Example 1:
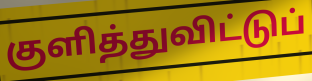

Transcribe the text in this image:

குளித்துவிட்டுப்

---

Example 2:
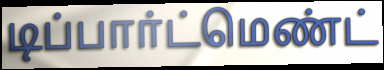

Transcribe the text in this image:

டிப்பார்ட்மெண்ட்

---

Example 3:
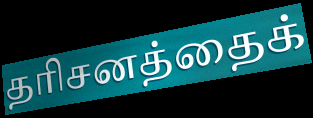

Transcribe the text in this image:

தரிசனத்தைக்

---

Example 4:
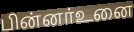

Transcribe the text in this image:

பின்னர்உனை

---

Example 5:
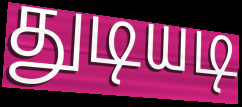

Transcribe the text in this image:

துடியடி